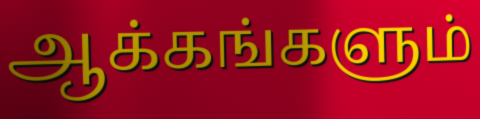
ஆக்கங்களும்